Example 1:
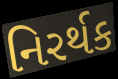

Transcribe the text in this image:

નિરર્થક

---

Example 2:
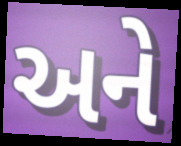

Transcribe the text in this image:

અને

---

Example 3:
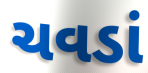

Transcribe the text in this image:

ચવડાં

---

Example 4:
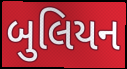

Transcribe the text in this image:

બુલિયન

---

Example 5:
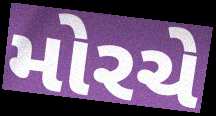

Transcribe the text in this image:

મોરચે